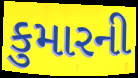
કુમારની